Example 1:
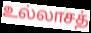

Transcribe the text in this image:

உல்லாசத்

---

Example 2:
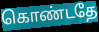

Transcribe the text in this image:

கொண்டதே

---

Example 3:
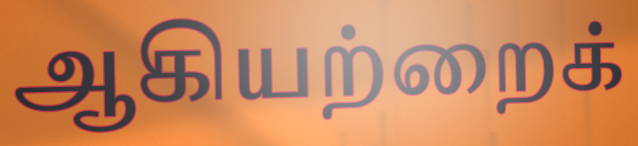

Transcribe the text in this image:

ஆகியற்றைக்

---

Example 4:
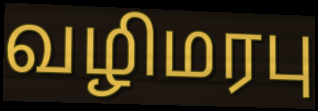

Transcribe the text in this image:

வழிமரபு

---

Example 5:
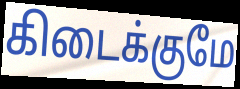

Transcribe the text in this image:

கிடைக்குமே